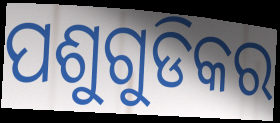
ପଶୁଗୁଡିକର